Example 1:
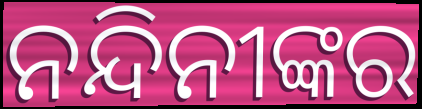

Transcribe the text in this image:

ନନ୍ଦିନୀଙ୍କର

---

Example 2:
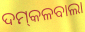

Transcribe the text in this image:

ଦମ୍‍କଳବାଲା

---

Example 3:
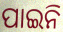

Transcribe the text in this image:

ପାଇନି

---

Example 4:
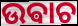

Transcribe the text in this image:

ଉଵାଚ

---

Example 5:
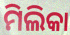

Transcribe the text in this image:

ମିଲିକା